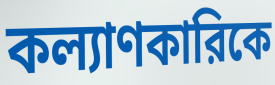
কল্যাণকারিকে